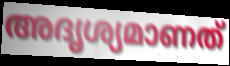
അദൃശ്യമാണത്